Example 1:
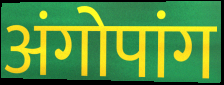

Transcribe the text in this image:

अंगोपांग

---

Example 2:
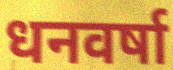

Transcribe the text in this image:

धनवर्षा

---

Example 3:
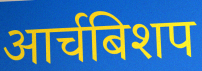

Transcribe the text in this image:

आर्चबिशप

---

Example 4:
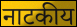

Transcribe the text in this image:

नाटकीय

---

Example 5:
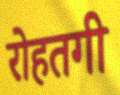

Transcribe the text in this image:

रोहतगी